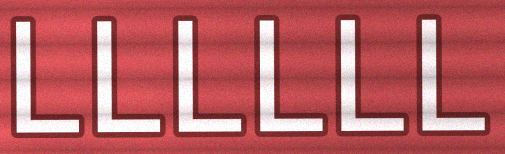
LLLLLL